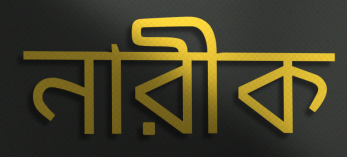
নারীক